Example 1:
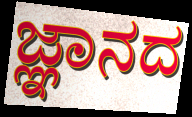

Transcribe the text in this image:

ಜ್ಞಾನದ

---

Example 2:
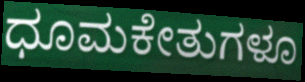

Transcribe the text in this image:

ಧೂಮಕೇತುಗಳೂ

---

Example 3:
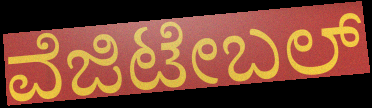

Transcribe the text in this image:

ವೆಜಿಟೇಬಲ್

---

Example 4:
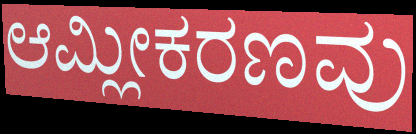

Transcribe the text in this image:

ಆಮ್ಲೀಕರಣವು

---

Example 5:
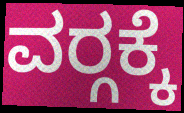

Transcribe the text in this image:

ವರ‍್ಗಕ್ಕೆ